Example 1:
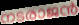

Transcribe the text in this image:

നടരാജൻ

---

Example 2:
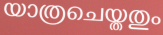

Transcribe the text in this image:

യാത്രചെയ്തതും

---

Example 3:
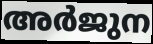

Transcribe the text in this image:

അർജുന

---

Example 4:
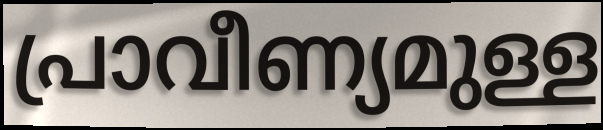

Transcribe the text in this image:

പ്രാവീണ്യമുള്ള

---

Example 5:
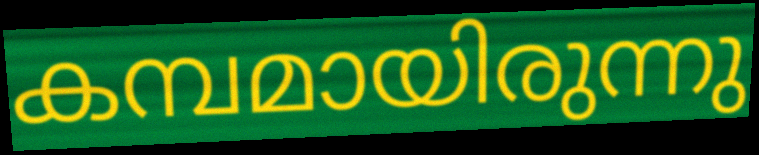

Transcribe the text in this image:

കമ്പമായിരുന്നു